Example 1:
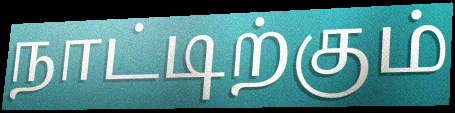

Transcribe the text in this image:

நாட்டிற்கும்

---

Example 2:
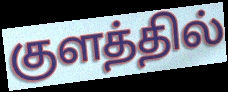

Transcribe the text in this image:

குளத்தில்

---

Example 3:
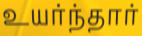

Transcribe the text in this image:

உயர்ந்தார்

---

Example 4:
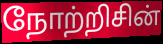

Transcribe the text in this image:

நோற்றிசின்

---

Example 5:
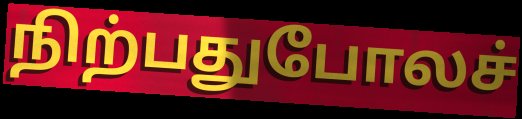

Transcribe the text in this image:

நிற்பதுபோலச்